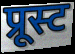
प्रूस्ट